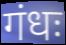
गंधः